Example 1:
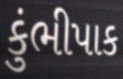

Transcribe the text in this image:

કુંભીપાક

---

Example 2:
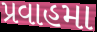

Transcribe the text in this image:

પ્રવાહમા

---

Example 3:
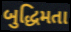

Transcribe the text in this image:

બુદ્ધિમતા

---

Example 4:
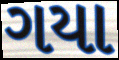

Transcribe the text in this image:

ગયા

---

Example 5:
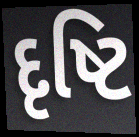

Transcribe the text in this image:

દૃષ્ટિ